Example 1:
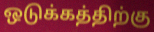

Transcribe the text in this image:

ஒடுக்கத்திற்கு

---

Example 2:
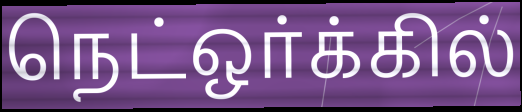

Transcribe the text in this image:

நெட்ஒர்க்கில்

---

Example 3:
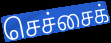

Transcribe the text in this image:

செச்சைக்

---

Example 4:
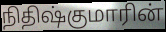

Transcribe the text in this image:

நிதிஷ்குமாரின்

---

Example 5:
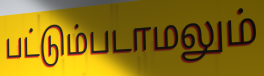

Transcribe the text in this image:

பட்டும்படாமலும்